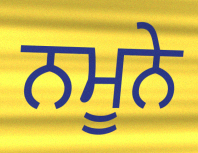
ਨਮੂਨੇ